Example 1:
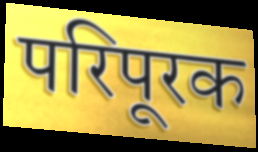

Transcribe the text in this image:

परिपूरक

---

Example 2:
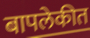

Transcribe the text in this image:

बापलेकीत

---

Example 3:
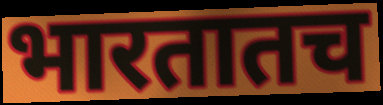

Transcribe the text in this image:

भारतातच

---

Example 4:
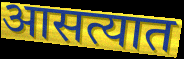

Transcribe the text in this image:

आसत्यात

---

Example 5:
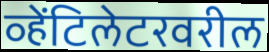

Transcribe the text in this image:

व्हेंटिलेटरवरील